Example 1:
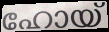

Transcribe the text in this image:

ഹോയ്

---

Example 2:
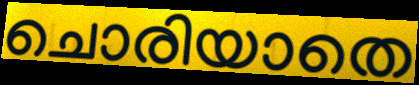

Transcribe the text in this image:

ചൊരിയാതെ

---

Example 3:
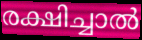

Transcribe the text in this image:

രക്ഷിച്ചാൽ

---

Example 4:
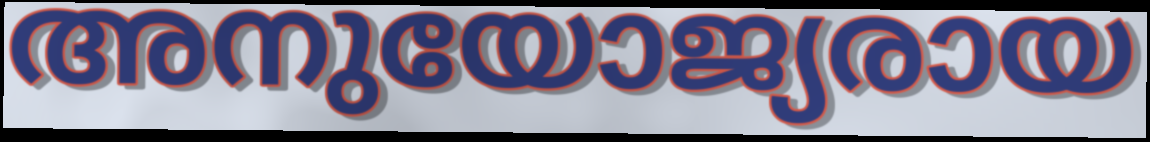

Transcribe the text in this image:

അനുയോജ്യരായ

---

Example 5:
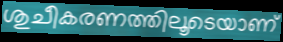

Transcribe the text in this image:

ശുചീകരണത്തിലൂടെയാണ്